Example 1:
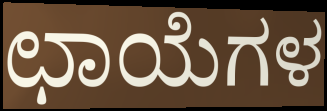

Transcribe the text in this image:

ಛಾಯೆಗಳ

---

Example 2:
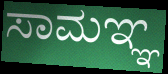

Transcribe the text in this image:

ಸಾಮಞ್ಞ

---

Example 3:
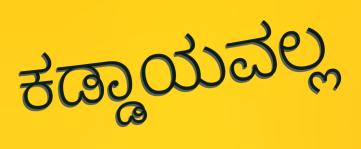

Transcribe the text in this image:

ಕಡ್ಡಾಯವಲ್ಲ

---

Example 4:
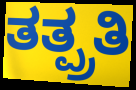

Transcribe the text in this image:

ತತ್ಪ್ರತಿ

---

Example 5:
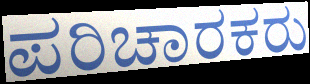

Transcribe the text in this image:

ಪರಿಚಾರಕರು